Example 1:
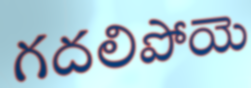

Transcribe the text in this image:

గదలిపోయె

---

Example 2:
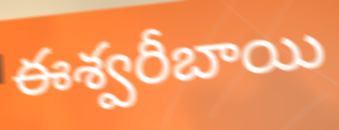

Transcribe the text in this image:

ఈశ్వరీబాయి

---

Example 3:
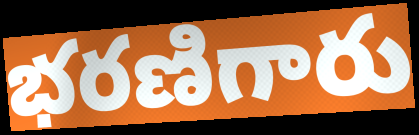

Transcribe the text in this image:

భరణిగారు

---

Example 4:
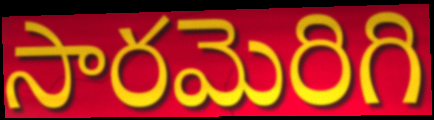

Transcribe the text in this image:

సారమెరిగి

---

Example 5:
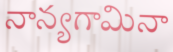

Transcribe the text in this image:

నాన్యగామినా